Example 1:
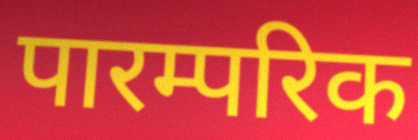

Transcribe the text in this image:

पारम्परिक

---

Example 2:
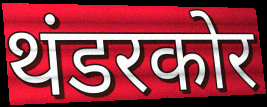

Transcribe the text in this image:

थंडरकोर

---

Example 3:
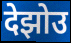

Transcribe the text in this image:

देझोउ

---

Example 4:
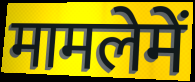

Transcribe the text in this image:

मामलेमें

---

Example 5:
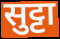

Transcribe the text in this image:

सुट्टा